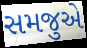
સમજુએ